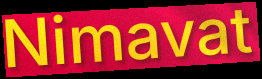
Nimavat